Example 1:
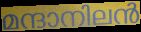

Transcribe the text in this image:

മന്ദാനിലൻ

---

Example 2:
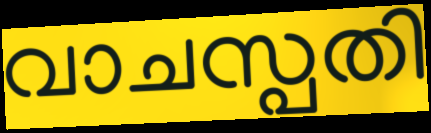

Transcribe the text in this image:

വാചസ്പതി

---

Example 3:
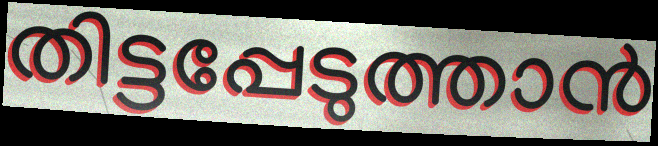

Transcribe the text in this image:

തിട്ടപ്പേടുത്താൻ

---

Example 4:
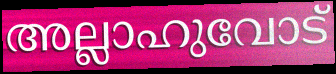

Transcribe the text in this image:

അല്ലാഹുവോട്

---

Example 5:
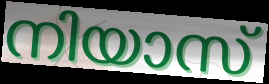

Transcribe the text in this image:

നിയാസ്